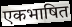
एकभाषित